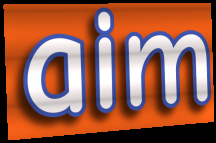
aim